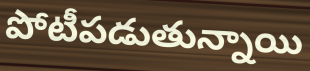
పోటీపడుతున్నాయి